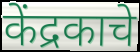
केंद्रकाचे